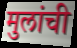
मुलांची